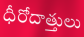
ధీరోదాత్తులు